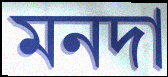
মনদা